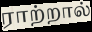
ராற்றால்